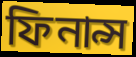
ফিনান্স